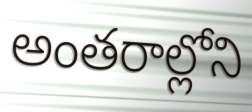
అంతరాల్లోని